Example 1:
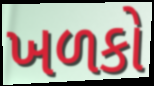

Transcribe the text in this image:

ખળકો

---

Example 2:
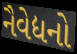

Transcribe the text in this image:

નૈવેદ્યનો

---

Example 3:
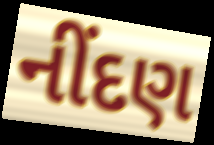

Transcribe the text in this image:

નીંદણ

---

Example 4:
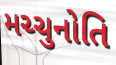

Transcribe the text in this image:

મચ્ચુનોતિ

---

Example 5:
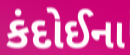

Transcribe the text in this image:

કંદોઈના